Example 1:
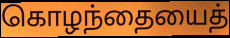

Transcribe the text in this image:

கொழந்தையைத்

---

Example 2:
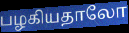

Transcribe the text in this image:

பழகியதாலோ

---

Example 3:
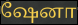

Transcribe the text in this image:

ஷேனா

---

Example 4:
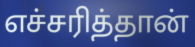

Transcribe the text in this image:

எச்சரித்தான்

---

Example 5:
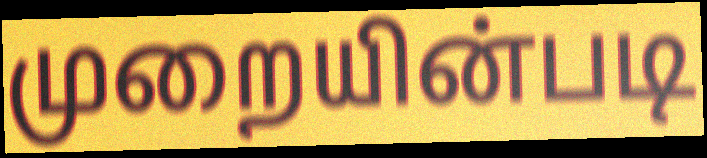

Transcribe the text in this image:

முறையின்படி